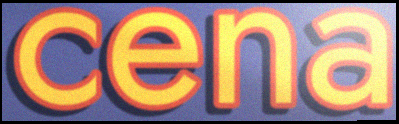
cena